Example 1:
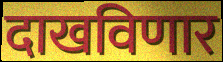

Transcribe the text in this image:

दाखविणार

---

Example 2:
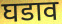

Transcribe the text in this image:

घडाव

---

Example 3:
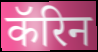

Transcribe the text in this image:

कॅरिन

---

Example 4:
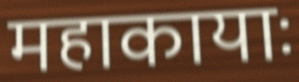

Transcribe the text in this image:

महाकायाः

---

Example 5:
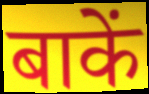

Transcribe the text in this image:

बाकें